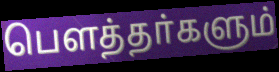
பௌத்தர்களும்